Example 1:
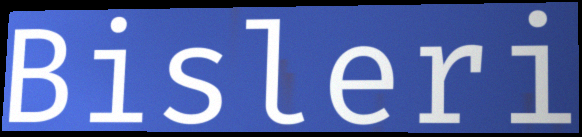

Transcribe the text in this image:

Bisleri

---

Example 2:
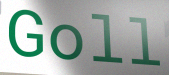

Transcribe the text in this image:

Goll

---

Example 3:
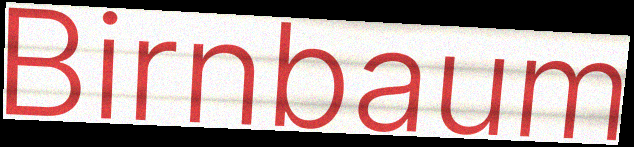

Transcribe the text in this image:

Birnbaum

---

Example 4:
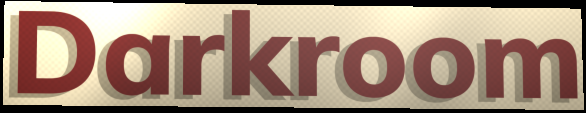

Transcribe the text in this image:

Darkroom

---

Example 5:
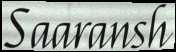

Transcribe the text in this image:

Saaransh